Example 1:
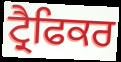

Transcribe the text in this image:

ਟ੍ਰੈਫਿਕਰ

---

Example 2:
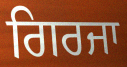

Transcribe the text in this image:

ਗਿਰਜਾ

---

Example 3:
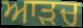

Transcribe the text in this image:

ਆੜਚ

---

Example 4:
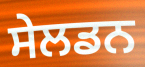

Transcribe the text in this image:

ਸੇਲਡਨ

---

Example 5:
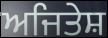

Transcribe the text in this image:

ਅਜਿਤੇਸ਼